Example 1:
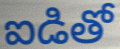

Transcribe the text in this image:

ఐడితో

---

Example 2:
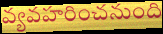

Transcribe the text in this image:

వ్యవహరించనుంది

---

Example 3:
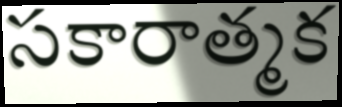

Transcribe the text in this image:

సకారాత్మక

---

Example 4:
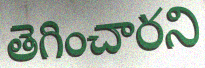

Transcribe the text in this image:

తెగించారని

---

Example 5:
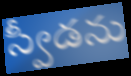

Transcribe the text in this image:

స్వీడను